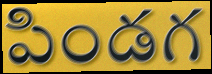
పిండగ